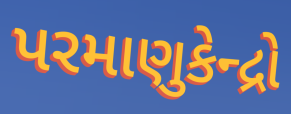
પરમાણુકેન્દ્રો